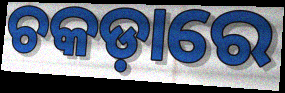
ଚକଡ଼ାରେ